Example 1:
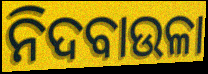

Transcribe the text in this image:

ନିଦବାଉଳା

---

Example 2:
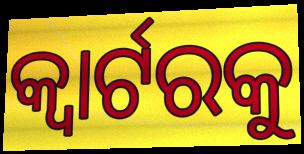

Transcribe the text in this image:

କ୍ୱାର୍ଟରକୁ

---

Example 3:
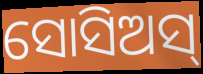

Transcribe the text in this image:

ସୋସିଅସ୍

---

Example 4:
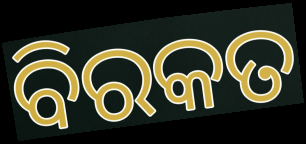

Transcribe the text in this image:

ବିରକତ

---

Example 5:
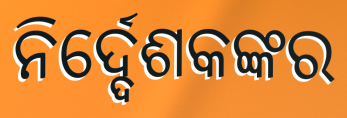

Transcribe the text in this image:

ନିର୍ଦ୍ଦେଶକଙ୍କର